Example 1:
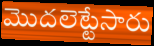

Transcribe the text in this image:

మొదలెట్టేసారు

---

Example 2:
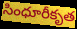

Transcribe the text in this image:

సింధూరీకృత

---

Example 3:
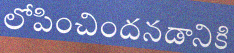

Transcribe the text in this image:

లోపించిందనడానికి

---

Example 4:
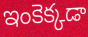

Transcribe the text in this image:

ఇంకెక్కడా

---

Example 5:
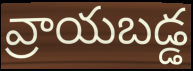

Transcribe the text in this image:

వ్రాయబడ్డ